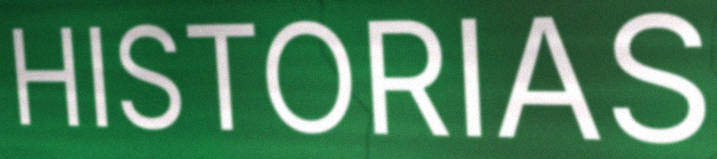
HISTORIAS